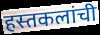
हस्तकलांची